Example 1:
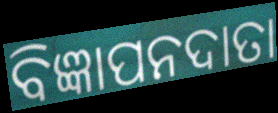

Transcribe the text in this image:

ବିଜ୍ଞାପନଦାତା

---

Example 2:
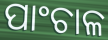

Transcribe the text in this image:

ପାଂଚାଳ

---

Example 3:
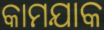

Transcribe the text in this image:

କାମଯାକ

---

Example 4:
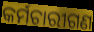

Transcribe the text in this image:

କର୍ମଚାରୀଗଣ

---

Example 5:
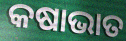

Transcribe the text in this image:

କଷାଭାତ